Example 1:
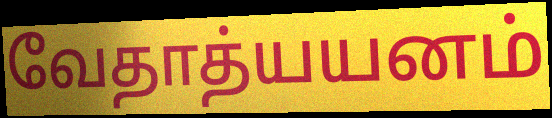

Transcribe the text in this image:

வேதாத்யயனம்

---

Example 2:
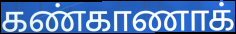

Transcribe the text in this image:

கண்காணாக்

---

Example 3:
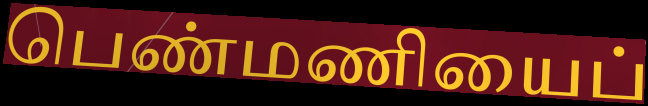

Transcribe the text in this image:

பெண்மணியைப்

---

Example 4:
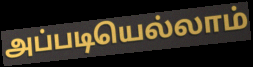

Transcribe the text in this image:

அப்படியெல்லாம்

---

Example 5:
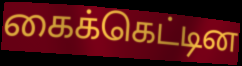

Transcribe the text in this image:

கைக்கெட்டின